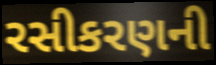
રસીકરણની